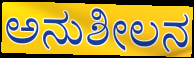
ಅನುಶೀಲನ